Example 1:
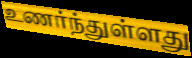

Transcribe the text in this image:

உணர்ந்துள்ளது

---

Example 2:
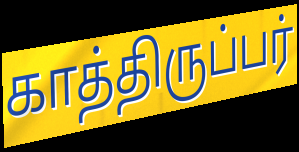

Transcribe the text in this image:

காத்திருப்பர்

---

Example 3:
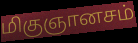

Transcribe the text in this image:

மிகுஞானசம்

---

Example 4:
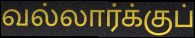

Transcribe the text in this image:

வல்லார்க்குப்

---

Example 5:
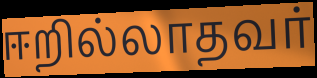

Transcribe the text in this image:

ஈறில்லாதவர்